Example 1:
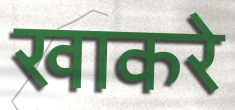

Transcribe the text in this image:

खाकरे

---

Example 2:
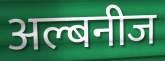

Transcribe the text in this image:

अल्‍बनीज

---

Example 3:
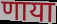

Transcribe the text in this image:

णाया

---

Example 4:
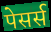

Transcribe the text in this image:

पेसर्स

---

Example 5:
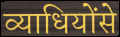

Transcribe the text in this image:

व्याधियोंसे